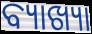
ବ୍ୟାଖ୍ୟା